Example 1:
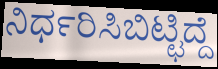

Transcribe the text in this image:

ನಿರ್ಧರಿಸಿಬಿಟ್ಟಿದ್ದೆ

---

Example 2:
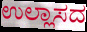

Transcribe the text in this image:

ಉಲ್ಲಾಸದ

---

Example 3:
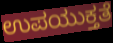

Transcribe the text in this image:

ಉಪಯುಕ್ತತೆ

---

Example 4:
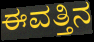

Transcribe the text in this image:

ಈವತ್ತಿನ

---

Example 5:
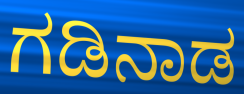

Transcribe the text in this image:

ಗಡಿನಾಡ